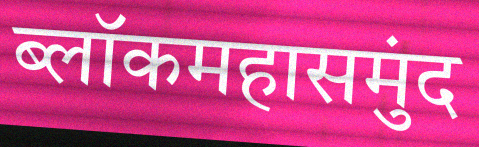
ब्लॉकमहासमुंद